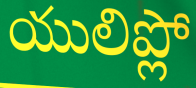
యులిప్లో